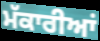
ਮੱਕਾਰੀਆਂ